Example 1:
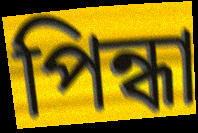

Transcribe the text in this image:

পিন্ধা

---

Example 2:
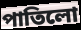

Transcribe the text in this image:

পাতিলো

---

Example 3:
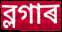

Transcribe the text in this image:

ব্লগাৰ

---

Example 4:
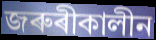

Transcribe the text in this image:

জৰুৰীকালীন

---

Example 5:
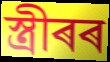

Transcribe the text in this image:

স্ত্ৰীৰৰ